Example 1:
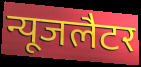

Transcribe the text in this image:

न्यूजलैटर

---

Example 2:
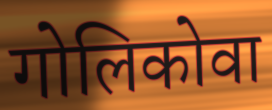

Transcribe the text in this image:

गोलिकोवा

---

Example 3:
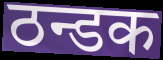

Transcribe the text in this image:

ठन्डक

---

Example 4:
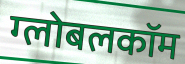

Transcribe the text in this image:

ग्लोबलकॉम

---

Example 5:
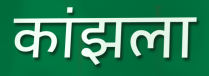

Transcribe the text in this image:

कांझला